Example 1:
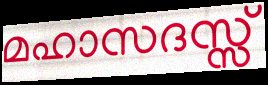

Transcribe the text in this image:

മഹാസദസ്സ്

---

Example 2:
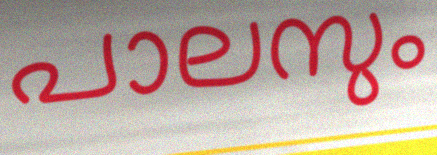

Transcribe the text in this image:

പാലസും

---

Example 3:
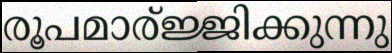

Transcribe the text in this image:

രൂപമാര്ജ്ജിക്കുന്നു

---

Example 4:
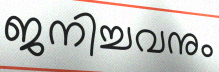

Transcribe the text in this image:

ജനിച്ചവനും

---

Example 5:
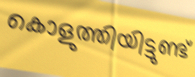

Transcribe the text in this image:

കൊളുത്തിയിട്ടുണ്ട്